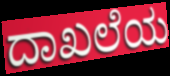
ದಾಖಲೆಯ